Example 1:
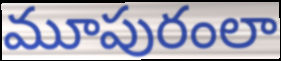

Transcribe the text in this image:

మూపురంలా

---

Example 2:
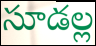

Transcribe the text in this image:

సూడల్ల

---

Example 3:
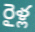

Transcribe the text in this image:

రైళ్ల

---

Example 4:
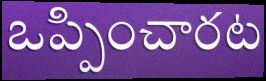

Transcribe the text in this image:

ఒప్పించారట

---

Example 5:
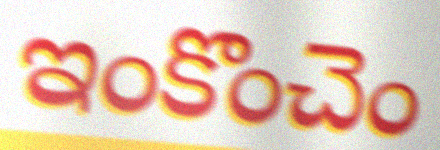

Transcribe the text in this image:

ఇంకొంచెం